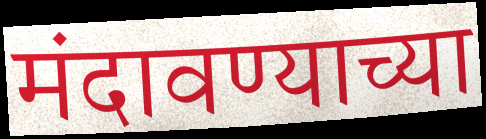
मंदावण्याच्या